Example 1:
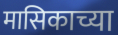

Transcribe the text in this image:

मासिकाच्या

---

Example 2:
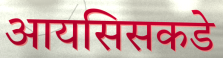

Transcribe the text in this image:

आयसिसकडे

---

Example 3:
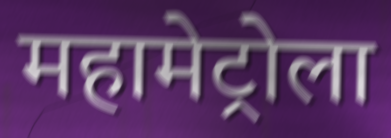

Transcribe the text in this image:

महामेट्रोला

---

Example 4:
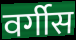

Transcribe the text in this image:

वर्गीस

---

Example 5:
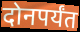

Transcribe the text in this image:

दोनपर्यंत